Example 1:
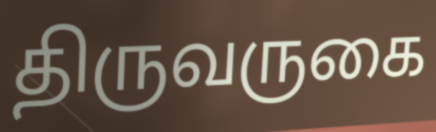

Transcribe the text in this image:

திருவருகை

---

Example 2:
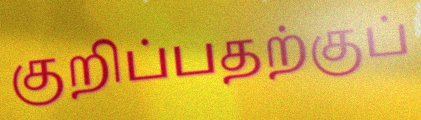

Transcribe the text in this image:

குறிப்பதற்குப்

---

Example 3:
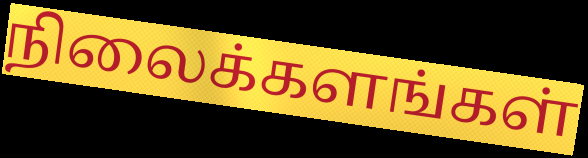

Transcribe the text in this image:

நிலைக்களங்கள்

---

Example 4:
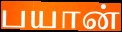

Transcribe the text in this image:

பயான்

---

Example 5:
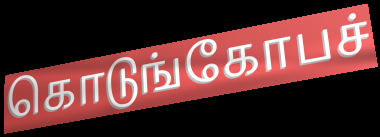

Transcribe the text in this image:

கொடுங்கோபச்